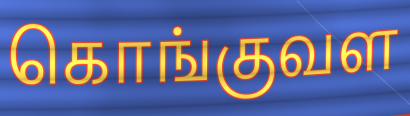
கொங்குவள